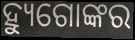
ହ୍ୟୁଗୋଙ୍କର